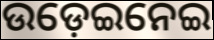
ଉଡ଼େଇନେଇ